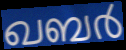
ഖബർ